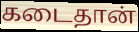
கடைதான்